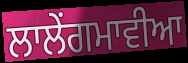
ਲਾਲੇਂਗਮਾਵੀਆ